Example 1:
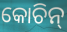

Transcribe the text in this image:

କୋଚିନ୍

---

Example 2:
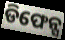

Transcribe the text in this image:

ଡିଫେନ୍ସ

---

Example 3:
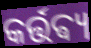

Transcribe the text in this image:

କର୍ତ୍ତଵ୍ୟ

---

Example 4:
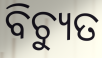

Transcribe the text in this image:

ବିଚ୍ୟୁତ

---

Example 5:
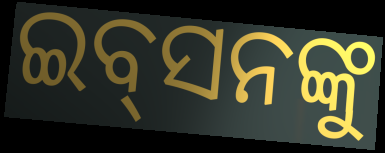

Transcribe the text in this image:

ଇବ୍‌ସନଙ୍କୁ